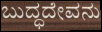
ಬುದ್ಧದೇವನು